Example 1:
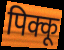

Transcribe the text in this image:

पिक्कू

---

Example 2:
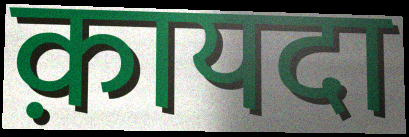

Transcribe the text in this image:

क़ायदा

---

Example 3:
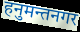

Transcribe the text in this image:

हनुमन्तनगर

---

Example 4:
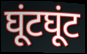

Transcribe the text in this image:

घूंटघूंट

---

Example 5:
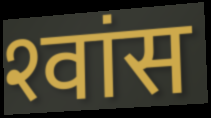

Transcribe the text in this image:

श्वांस